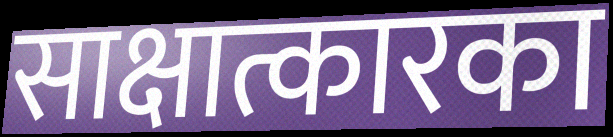
साक्षात्कारका